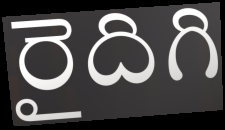
రైదిగి